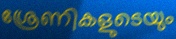
ശ്രേണികളുടെയും